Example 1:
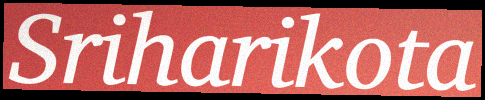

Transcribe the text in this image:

Sriharikota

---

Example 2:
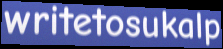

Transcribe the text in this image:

writetosukalp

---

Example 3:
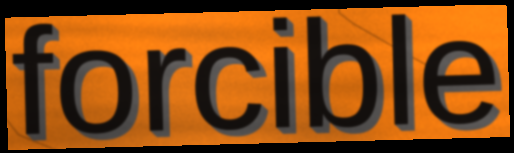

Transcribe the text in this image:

forcible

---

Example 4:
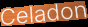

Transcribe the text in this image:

Celadon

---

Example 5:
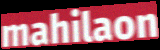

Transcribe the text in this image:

mahilaon